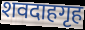
शवदाहगृह